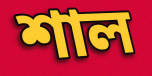
শাল